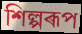
শিল্পৰূপ